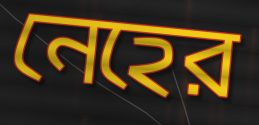
নেহের